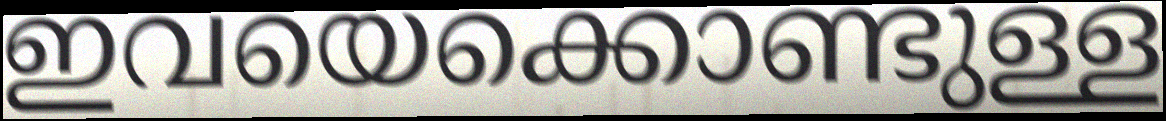
ഇവയെക്കൊണ്ടുള്ള